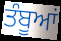
ਤੰਬੂਆਂ